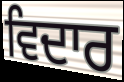
ਵਿਦਾਰ